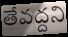
తేవద్దని